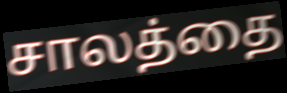
சாலத்தை